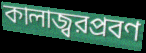
কালাজ্বরপ্রবণ